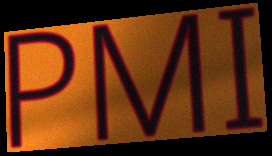
PMI